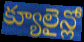
క్యూలైన్లో